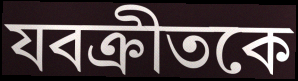
যবক্রীতকে